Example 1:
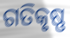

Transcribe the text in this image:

ଗତିକୃଷ୍ଣ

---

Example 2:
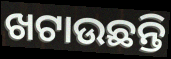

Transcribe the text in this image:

ଖଟାଉଛନ୍ତି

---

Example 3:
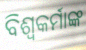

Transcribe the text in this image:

ବିଶ୍ୱକର୍ମାଙ୍କ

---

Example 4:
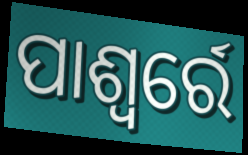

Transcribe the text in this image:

ପାଶ୍ୱର୍ରେ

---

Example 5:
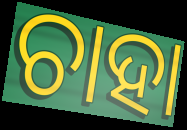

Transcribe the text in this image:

ଚାହା